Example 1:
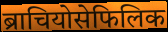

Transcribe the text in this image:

ब्राचियोसेफिलिक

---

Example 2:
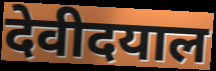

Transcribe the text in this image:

देवीदयाल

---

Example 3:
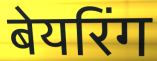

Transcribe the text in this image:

बेयरिंग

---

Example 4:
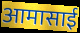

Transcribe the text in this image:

आमासाई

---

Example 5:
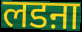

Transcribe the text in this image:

लडऩा